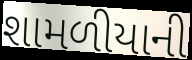
શામળીયાની